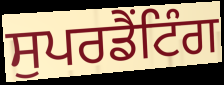
ਸੁਪਰਡੈਂਟਿੰਗ